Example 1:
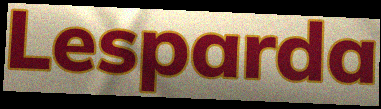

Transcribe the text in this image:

Lesparda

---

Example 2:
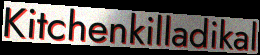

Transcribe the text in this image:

Kitchenkilladikal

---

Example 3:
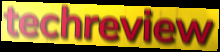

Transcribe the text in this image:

techreview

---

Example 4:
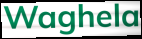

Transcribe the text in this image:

Waghela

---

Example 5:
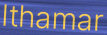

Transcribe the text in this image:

Ithamar